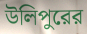
উলিপুরের